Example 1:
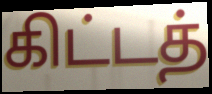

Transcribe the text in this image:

கிட்டத்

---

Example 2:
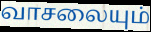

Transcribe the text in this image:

வாசலையும்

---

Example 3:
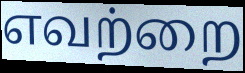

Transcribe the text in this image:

எவற்றை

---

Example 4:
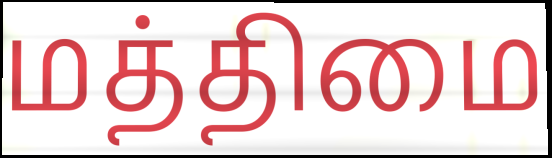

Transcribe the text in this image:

மத்திமை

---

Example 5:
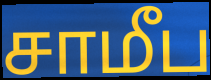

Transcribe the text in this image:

சாமீப